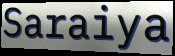
Saraiya